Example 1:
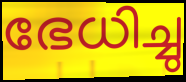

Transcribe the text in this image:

ഭേധിച്ചു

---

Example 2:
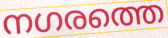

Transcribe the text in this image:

നഗരത്തെ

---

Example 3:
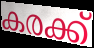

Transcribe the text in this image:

കരക്ക്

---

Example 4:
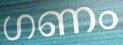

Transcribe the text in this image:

ഗണം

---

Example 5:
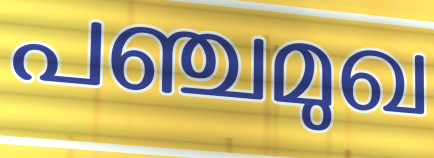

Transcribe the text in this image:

പഞ്ചമുഖ